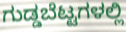
ಗುಡ್ಡಬೆಟ್ಟಗಳಲ್ಲಿ